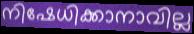
നിഷേധിക്കാനാവില്ല